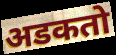
अडकतो